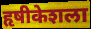
हृषीकेशला